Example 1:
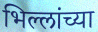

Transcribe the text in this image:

भिल्लांच्या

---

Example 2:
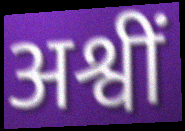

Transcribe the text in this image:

अश्वीं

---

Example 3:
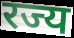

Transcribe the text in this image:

रज्य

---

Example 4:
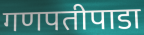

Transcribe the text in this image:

गणपतीपाडा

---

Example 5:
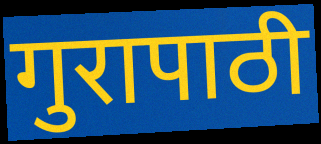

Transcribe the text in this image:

गुरापाठी